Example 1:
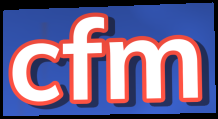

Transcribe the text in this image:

cfm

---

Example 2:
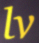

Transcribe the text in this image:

lv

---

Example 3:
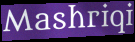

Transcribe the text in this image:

Mashriqi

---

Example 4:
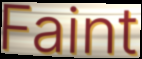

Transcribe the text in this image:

Faint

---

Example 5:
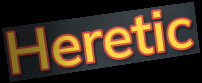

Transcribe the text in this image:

Heretic